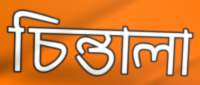
চিন্তালা